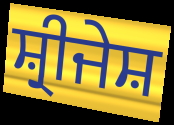
ਸ਼੍ਰੀਜੇਸ਼